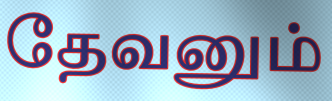
தேவனும்